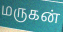
மருகன்